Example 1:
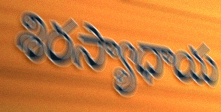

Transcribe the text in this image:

శిరస్యాధాయ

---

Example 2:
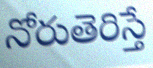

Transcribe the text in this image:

నోరుతెరిస్తే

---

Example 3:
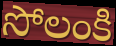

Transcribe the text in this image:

సోలంకి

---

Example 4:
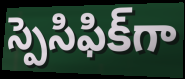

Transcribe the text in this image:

స్పెసిఫిక్‌గా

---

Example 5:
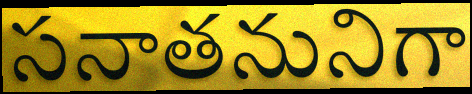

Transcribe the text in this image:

సనాతనునిగా